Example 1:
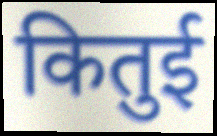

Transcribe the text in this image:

कितुई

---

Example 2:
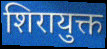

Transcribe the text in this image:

शिरायुक्त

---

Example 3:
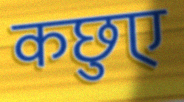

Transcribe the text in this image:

कछुए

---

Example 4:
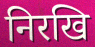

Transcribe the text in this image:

निरखि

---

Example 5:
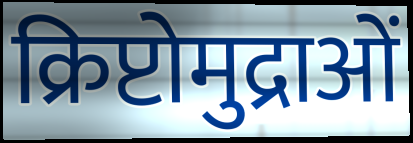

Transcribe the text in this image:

क्रिप्टोमुद्राओं